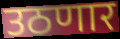
उठणार